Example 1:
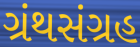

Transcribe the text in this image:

ગ્રંથસંગ્રહ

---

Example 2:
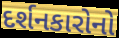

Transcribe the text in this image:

દર્શનકારોનો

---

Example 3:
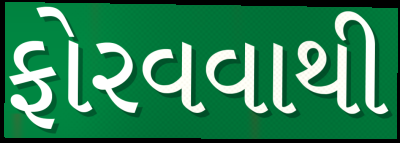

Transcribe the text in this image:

ફોરવવાથી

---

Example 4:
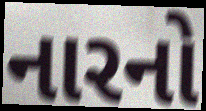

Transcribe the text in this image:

નારનો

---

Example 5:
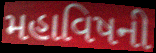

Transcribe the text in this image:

મહાવિષની